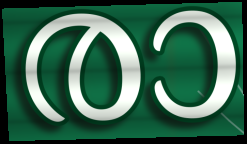
രാ